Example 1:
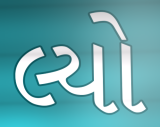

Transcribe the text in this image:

લ્યો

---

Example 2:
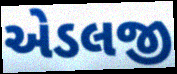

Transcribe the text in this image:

એડલજી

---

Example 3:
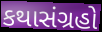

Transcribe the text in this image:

કથાસંગ્રહો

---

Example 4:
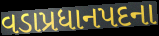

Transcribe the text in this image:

વડાપ્રધાનપદના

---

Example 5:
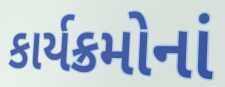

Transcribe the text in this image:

કાર્યક્રમોનાં